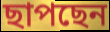
ছাপছেন